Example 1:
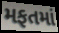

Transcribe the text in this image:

મફતમાં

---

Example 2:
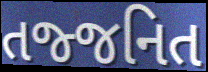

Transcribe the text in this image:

તજ્જનિત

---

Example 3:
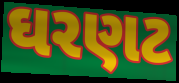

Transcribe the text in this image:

ઘરણટ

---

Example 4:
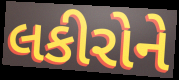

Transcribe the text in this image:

લકીરોને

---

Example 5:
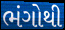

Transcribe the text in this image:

ભંગોથી